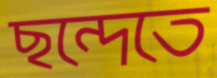
ছন্দেতে